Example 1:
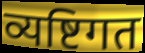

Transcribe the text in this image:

व्यष्टिगत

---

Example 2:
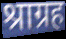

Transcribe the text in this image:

श्राग्रह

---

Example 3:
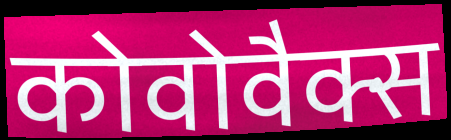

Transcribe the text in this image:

कोवोवैक्स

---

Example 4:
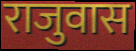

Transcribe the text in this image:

राजुवास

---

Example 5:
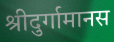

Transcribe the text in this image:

श्रीदुर्गामानस